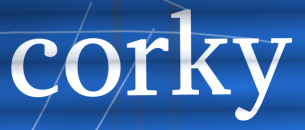
corky